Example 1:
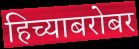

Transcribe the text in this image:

हिच्याबरोबर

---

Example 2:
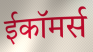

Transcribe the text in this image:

ईकॉमर्स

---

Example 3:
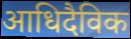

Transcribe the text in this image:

आधिदैविक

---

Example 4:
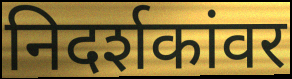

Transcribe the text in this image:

निदर्शकांवर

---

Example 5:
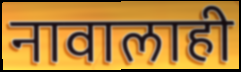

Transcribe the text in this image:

नावालाही